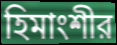
হিমাংশীর